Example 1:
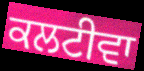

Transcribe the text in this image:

ਕਲਟੀਵਾ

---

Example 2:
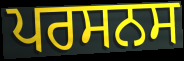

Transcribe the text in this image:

ਪਰਸਨਸ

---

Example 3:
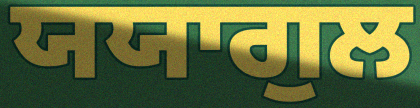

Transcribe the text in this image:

ਯਯਾਗੁਲ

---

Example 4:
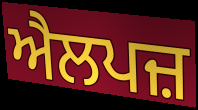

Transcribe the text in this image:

ਐਲਪਜ਼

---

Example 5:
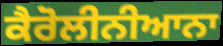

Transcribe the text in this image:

ਕੈਰੋਲੀਨੀਆਨਾ